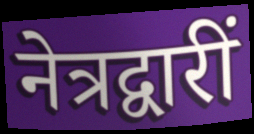
नेत्रद्वारीं